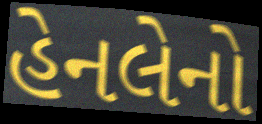
હેનલેનો